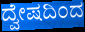
ದ್ವೇಷದಿಂದ